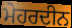
ਮੇਹਰਦੀਨ